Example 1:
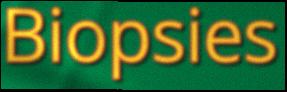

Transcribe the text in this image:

Biopsies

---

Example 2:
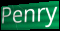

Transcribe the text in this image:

Penry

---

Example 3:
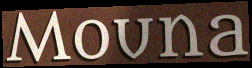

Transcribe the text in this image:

Mouna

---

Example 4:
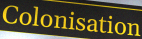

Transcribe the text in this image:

Colonisation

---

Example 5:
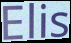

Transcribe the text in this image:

Elis